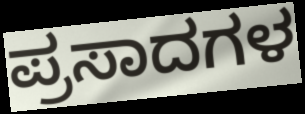
ಪ್ರಸಾದಗಳ